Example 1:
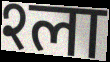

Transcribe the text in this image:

श्ला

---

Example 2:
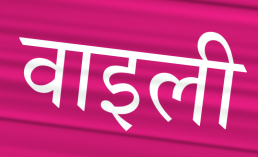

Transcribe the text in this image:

वाइली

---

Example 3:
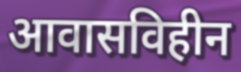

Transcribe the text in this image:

आवासविहीन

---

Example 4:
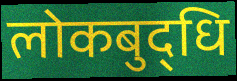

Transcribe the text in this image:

लोकबुद्धि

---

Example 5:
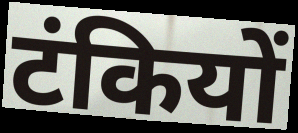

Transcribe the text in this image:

टंकियों